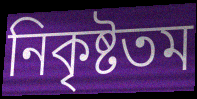
নিকৃষ্টতম